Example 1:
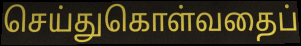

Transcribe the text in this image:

செய்துகொள்வதைப்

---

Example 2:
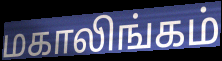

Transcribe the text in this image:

மகாலிங்கம்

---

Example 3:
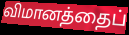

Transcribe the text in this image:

விமானத்தைப்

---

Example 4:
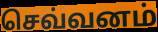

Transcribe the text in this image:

செவ்வனம்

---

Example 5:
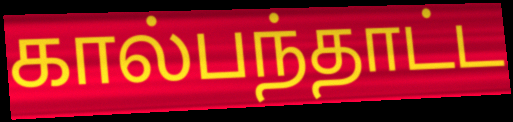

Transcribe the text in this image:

கால்பந்தாட்ட